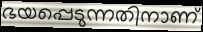
ഭയപ്പെടുന്നതിനാണ്